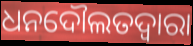
ଧନଦୌଲତଦ୍ଵାରା